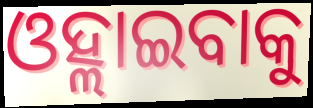
ଓହ୍ଲାଇବାକୁ